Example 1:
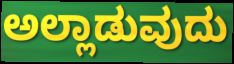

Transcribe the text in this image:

ಅಲ್ಲಾಡುವುದು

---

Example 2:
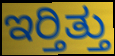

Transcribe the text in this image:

ಇರ್‍ತಿತ್ತು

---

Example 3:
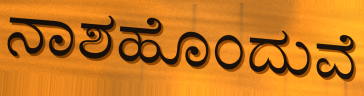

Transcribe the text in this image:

ನಾಶಹೊಂದುವೆ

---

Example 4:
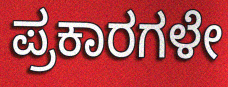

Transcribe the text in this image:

ಪ್ರಕಾರಗಳೇ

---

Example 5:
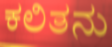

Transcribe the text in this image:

ಕಲಿತನು